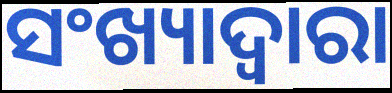
ସଂଖ୍ୟାଦ୍ଵାରା